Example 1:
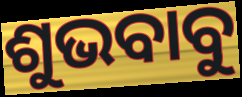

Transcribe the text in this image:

ଶୁଭବାବୁ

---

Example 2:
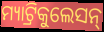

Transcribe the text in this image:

ମ୍ୟାଟ୍ରିକୁଲେସନ୍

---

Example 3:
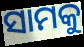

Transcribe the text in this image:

ସାମକୁ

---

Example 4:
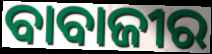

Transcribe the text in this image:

ବାବାଜୀର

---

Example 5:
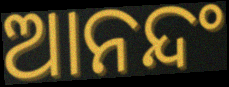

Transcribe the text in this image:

ଆନନ୍ଦଂ